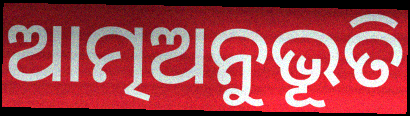
ଆତ୍ମଅନୁଭୂତି